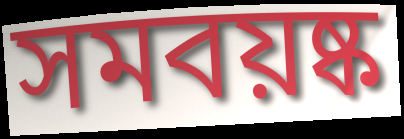
সমবয়ষ্ক